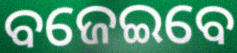
ବଜେଇବେ